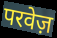
परवेज़